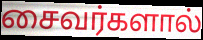
சைவர்களால்